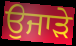
ਉਜਾੜੇ